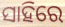
ସାହିରେ